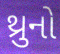
થ્રુનો